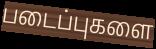
படைப்புகளை